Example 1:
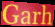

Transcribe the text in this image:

Garh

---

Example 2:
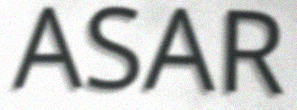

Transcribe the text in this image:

ASAR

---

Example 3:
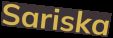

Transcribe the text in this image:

Sariska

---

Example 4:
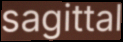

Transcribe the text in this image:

sagittal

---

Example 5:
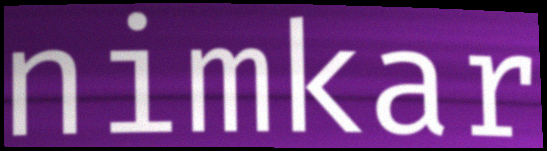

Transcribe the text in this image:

nimkar